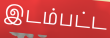
இடம்பட்ட